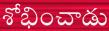
శోభించాడు